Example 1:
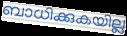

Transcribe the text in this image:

ബാധിക്കുകയില്ല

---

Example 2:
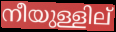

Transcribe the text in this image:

നീയുള്ളില്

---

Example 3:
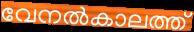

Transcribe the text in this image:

വേനൽകാലത്ത്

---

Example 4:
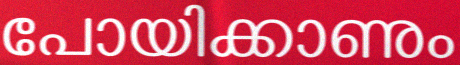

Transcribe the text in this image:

പോയിക്കാണും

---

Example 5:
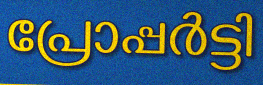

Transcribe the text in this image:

പ്രോപ്പർട്ടി